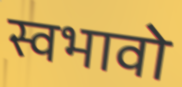
स्वभावो